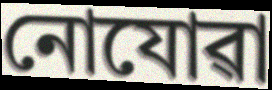
নোযোৱা